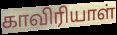
காவிரியாள்